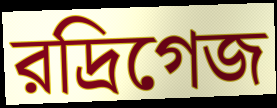
রদ্রিগেজ